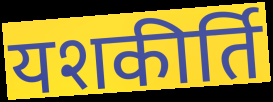
यशकीर्ति